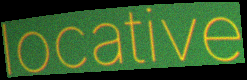
locative